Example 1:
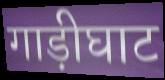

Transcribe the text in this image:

गाड़ीघाट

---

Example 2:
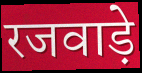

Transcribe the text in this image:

रजवाड़े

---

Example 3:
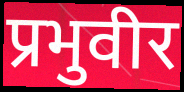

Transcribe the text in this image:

प्रभुवीर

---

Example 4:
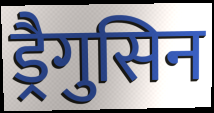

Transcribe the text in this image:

ड्रैगुसिन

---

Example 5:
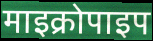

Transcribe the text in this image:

माइक्रोपाइप